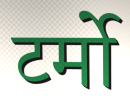
टर्मो